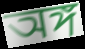
অঙ্গ